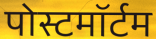
पोस्टमॉर्टम